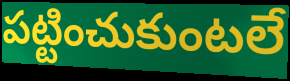
పట్టించుకుంటలే